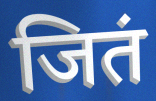
जितं